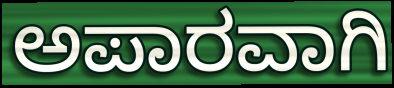
ಅಪಾರವಾಗಿ